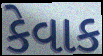
કેવાક